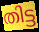
തിട്ട